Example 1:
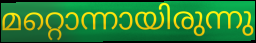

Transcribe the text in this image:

മറ്റൊന്നായിരുന്നു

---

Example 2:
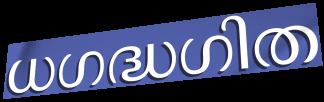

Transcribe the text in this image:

ധഗദ്ധഗിത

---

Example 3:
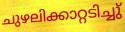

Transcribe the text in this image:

ചുഴലിക്കാറ്റടിച്ചു്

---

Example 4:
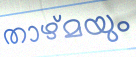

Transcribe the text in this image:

താഴ്മയും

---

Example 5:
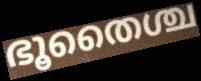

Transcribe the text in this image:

ഭൂതൈശ്ച